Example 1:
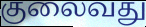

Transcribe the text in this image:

குலைவது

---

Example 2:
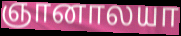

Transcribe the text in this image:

ஞானாலயா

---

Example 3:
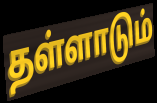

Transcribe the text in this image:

தள்ளாடும்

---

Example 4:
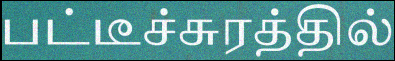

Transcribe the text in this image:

பட்டீச்சுரத்தில்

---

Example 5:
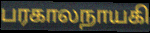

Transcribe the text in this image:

பரகாலநாயகி